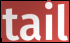
tail